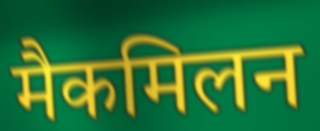
मैकमिलन